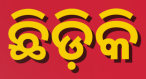
ଛିଡ଼ିକି